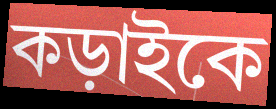
কড়াইকে